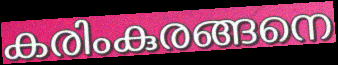
കരിംകുരങ്ങനെ